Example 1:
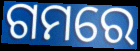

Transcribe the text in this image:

ଗମରେ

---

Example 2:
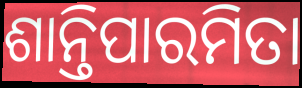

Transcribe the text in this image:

ଶାନ୍ତିପାରମିତା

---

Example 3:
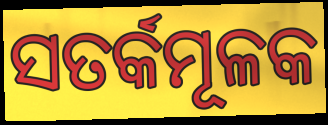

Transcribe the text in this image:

ସତର୍କମୂଳକ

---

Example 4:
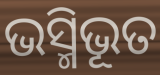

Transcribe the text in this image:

ଭସ୍ମିଭୂତ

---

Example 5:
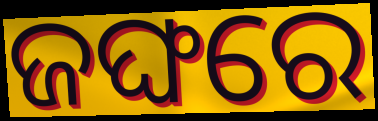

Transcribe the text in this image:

ଜଙ୍ଘରେ